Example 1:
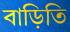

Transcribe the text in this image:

বাড়িতি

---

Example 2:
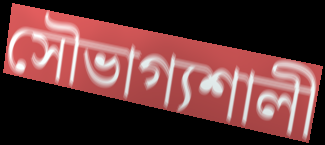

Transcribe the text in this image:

সৌভাগ্যশালী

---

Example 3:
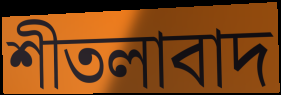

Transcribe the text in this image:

শীতলাবাদ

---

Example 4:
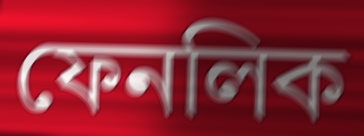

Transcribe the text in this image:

ফেনলিক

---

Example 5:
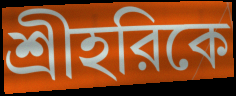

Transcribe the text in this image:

শ্রীহরিকে